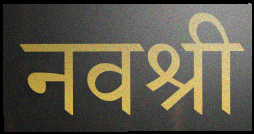
नवश्री